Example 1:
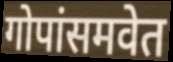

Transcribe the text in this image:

गोपांसमवेत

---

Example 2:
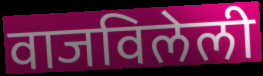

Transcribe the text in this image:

वाजविलेली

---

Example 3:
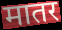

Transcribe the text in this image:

मातर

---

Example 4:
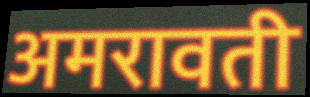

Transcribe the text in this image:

अमरावती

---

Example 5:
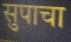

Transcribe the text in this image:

सुपाचा